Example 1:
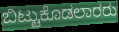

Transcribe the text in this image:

ಬಿಟ್ಟುಕೊಡಲಾರರು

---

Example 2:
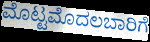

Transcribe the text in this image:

ಮೊಟ್ಟಮೊದಲಬಾರಿಗೆ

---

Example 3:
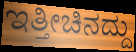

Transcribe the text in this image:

ಇತ್ತೀಚಿನದ್ದು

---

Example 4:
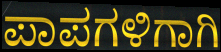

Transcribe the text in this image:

ಪಾಪಗಳಿಗಾಗಿ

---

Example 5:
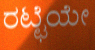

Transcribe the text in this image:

ರಟ್ಟೆಯೇ